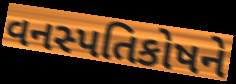
વનસ્પતિકોષને